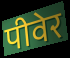
पीवेर